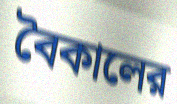
বৈকালের